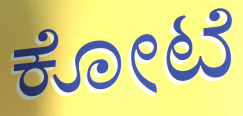
ಕೋಟೆ